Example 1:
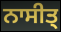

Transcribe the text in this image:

ਨਾਸੀਤ੍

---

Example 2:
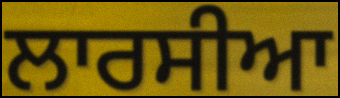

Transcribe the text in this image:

ਲਾਰਸੀਆ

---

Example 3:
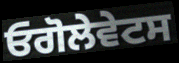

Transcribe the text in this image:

ਓਗੋਲੇਵੇਟਸ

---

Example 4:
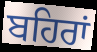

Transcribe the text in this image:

ਬਹਿਰਾਂ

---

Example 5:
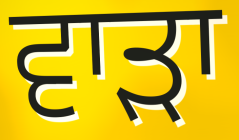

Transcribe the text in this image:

ਵਾੜਾ